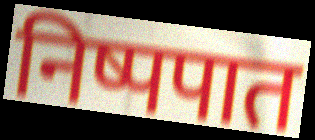
निष्पपात